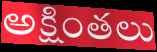
అక్షింతలు